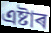
এষ্টাৰ